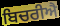
ਬਿਚਰੀਐ